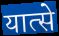
यात्से